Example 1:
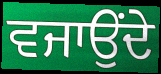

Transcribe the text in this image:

ਵਜਾਉਂਦੇ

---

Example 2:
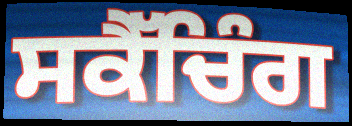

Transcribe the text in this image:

ਸਕੈੱਚਿੰਗ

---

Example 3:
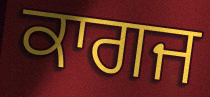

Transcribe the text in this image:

ਕਾਗਜ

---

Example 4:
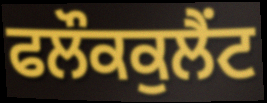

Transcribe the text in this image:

ਫਲੌਕਕੁਲੈਂਟ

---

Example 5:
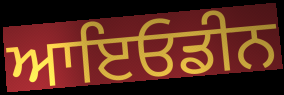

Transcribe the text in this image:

ਆਇਓਡੀਨ